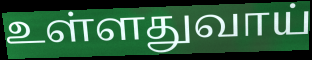
உள்ளதுவாய்